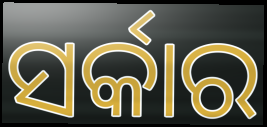
ସର୍କାର